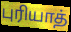
புரியாத்